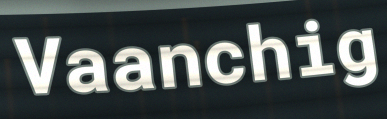
Vaanchig